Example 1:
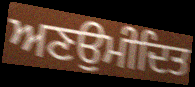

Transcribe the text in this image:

ਅਣਉਮੀਦਿਤ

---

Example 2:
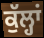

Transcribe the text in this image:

ਕੁੱਲ੍ਹਾਂ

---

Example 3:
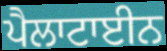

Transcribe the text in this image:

ਪੈਲਾਟਾਈਨ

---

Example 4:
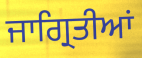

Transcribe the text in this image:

ਜਾਗ੍ਰਿਤੀਆਂ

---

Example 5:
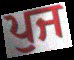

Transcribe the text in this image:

ਪੁਜ